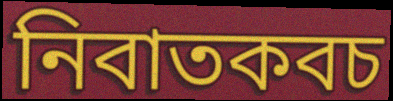
নিবাতকবচ